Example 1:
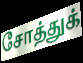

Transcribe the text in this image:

சோத்துக்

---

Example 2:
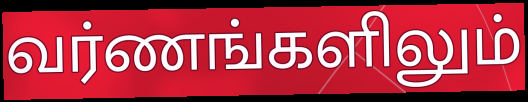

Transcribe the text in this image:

வர்ணங்களிலும்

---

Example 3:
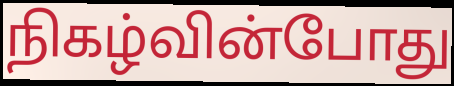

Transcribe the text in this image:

நிகழ்வின்போது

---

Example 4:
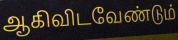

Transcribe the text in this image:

ஆகிவிடவேண்டும்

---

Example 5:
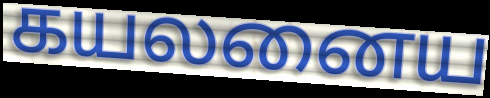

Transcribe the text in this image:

கயலனைய